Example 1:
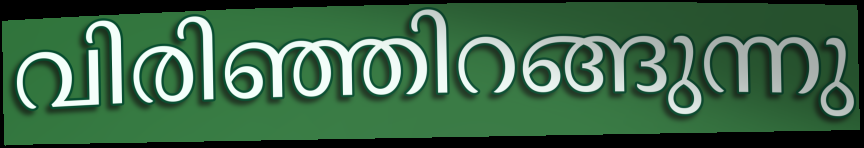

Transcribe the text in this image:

വിരിഞ്ഞിറങ്ങുന്നു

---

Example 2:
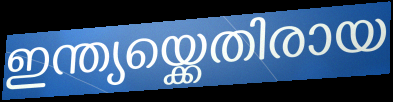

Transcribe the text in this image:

ഇന്ത്യയ്ക്കെതിരായ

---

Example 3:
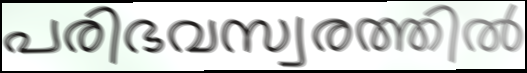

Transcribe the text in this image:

പരിഭവസ്വരത്തിൽ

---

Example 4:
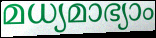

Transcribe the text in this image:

മധ്യമാഭ്യാം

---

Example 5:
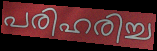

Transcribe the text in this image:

പരിഹരിച്ച